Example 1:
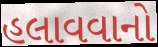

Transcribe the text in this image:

હલાવવાનો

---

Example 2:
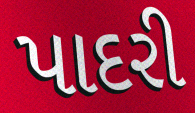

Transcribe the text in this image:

પાદરી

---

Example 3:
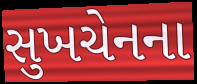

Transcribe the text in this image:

સુખચેનના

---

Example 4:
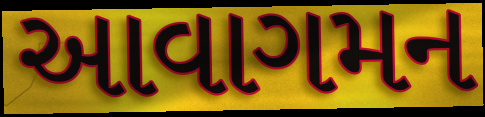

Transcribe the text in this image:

આવાગમન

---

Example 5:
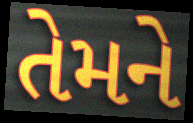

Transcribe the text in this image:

તેમને